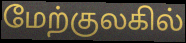
மேற்குலகில்